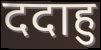
ददाहु